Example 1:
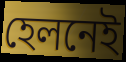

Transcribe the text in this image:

হেলনেই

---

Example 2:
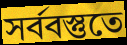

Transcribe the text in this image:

সর্ববস্তুতে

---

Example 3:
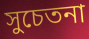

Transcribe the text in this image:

সুচেতনা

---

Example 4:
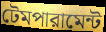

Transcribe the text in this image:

টেমপারামেন্ট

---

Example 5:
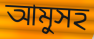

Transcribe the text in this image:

আমুসহ